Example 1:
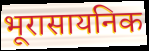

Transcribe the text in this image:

भूरासायनिक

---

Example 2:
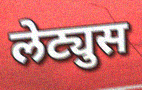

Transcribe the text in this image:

लेट्युस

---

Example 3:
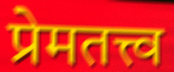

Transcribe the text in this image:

प्रेमतत्त्व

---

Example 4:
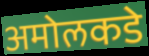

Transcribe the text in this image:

अमोलकडे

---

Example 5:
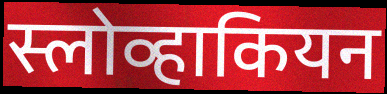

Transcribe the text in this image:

स्लोव्हाकियन